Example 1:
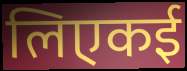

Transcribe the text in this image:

लिएकई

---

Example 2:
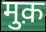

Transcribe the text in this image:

मुक़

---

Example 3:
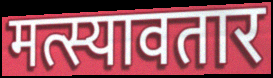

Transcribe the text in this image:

मत्स्यावतार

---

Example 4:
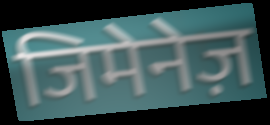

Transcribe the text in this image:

जिमेनेज़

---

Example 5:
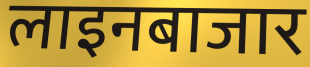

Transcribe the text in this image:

लाइनबाजार